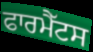
ਫਾਰਮੈੱਟਸ